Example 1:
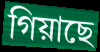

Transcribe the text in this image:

গিয়াছে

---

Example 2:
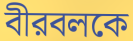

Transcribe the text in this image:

বীরবলকে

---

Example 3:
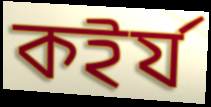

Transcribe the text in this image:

কইর্য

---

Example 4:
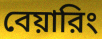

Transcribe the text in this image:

বেয়ারিং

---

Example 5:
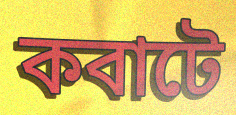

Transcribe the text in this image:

কবাটে